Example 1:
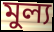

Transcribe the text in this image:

মুল্য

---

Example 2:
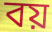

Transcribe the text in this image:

বয়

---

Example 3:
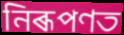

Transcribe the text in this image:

নিৰূপণত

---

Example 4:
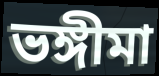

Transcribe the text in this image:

ভঙ্গীমা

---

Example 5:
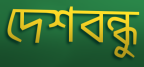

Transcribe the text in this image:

দেশবন্ধু